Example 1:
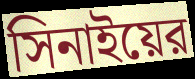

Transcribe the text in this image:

সিনাইয়ের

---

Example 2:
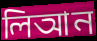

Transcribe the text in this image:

লিআন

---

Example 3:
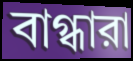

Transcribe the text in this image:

বাগ্ধারা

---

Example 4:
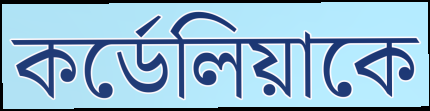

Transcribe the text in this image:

কর্ডেলিয়াকে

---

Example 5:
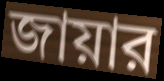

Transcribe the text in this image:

জায়ার